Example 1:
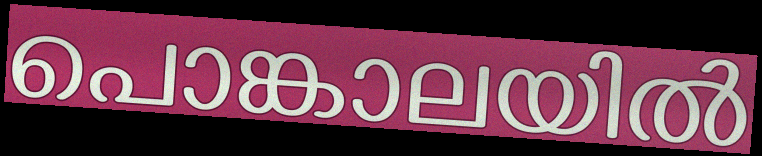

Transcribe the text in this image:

പൊങ്കാലയിൽ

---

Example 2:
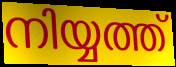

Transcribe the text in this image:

നിയ്യത്ത്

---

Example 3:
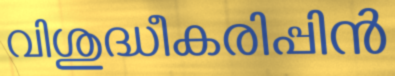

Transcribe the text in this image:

വിശുദ്ധീകരിപ്പിൻ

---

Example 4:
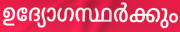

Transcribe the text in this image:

ഉദ്യോഗസ്ഥർക്കും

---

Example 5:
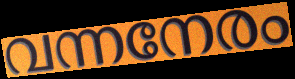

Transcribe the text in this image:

വന്നനേരം